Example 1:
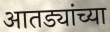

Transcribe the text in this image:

आतड्यांच्या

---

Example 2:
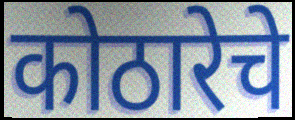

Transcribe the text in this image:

कोठारेचे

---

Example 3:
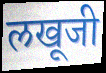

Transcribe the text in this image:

लखूजी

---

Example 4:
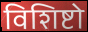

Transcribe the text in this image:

विशिष्टो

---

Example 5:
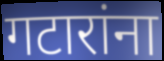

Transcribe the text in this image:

गटारांना